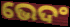
ଭେଦଂ